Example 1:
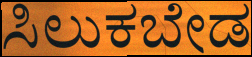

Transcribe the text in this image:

ಸಿಲುಕಬೇಡ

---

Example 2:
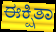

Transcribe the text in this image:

ಈಕ್ಷಿತಾ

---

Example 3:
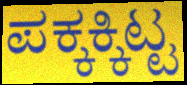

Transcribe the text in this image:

ಪಕ್ಕಕ್ಕಿಟ್ಟ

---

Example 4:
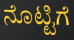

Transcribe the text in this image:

ನೊಟ್ಟಿಗೆ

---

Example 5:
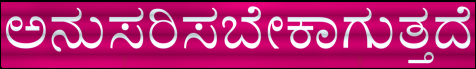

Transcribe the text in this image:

ಅನುಸರಿಸಬೇಕಾಗುತ್ತದೆ